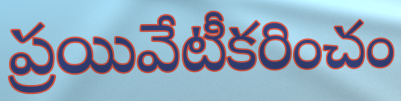
ప్రయివేటీకరించం